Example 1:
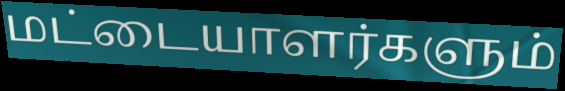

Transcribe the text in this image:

மட்டையாளர்களும்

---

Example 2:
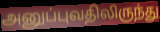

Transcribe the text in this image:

அனுப்புவதிலிருந்து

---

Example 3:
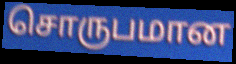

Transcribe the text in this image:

சொருபமான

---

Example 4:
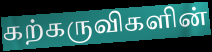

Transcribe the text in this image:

கற்கருவிகளின்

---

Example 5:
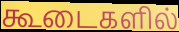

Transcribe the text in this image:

கூடைகளில்